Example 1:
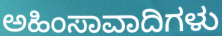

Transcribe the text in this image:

ಅಹಿಂಸಾವಾದಿಗಳು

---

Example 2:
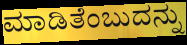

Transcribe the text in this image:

ಮಾಡಿತೆಂಬುದನ್ನು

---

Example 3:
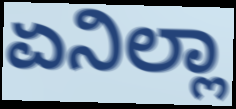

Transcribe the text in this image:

ಏನಿಲ್ಲಾ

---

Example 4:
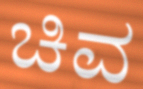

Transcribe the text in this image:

ಚಿವ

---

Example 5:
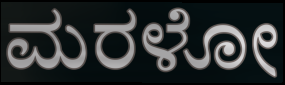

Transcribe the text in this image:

ಮರಳೋ